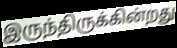
இருந்திருக்கின்றது